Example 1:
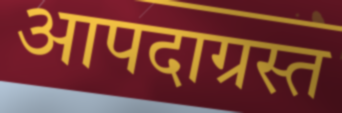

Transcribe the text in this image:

आपदाग्रस्त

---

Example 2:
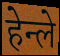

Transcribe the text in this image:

हेन्ले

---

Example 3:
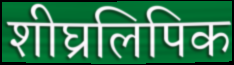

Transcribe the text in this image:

शीघ्रलिपिक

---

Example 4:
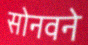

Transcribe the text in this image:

सोनवने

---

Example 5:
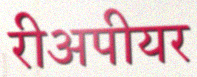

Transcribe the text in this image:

रीअपीयर